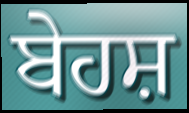
ਬੇਹਸ਼